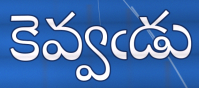
కెవ్వఁడు